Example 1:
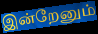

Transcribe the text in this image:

இன்றேனும்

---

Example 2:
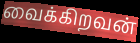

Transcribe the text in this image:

வைக்கிறவன்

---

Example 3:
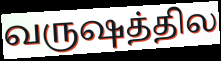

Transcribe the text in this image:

வருஷத்தில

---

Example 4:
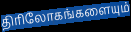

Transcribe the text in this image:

திரிலோகங்களையும்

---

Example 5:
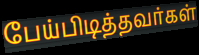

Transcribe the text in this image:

பேய்பிடித்தவர்கள்